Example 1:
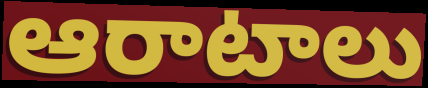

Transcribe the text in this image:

ఆరాటాలు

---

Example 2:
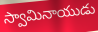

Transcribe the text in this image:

స్వామినాయుడు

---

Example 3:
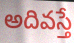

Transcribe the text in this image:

అదివస్తే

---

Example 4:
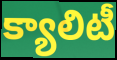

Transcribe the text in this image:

క్యాలిటీ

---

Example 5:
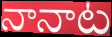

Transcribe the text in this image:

నానాట